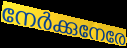
നേർക്കുനേരേ